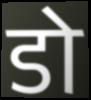
डो